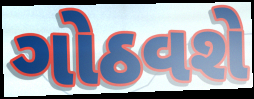
ગોઠવશે